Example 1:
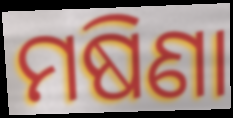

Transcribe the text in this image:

ମଷିଣା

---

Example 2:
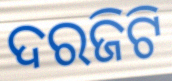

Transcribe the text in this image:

ଦରଜିଟି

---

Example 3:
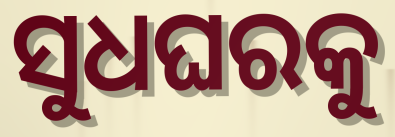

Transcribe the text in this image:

ସୁଧଘରକୁ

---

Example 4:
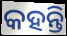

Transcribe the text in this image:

କହନ୍ତି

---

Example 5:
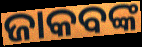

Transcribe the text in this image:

ଜାକବଙ୍କ